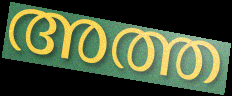
അത്ത